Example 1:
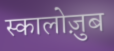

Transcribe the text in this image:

स्कालोज़ुब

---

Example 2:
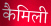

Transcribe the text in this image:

कैमिली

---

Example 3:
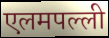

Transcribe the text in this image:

एलमपल्ली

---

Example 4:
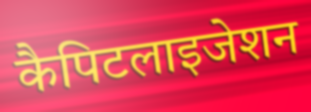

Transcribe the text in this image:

कैपिटलाइजेशन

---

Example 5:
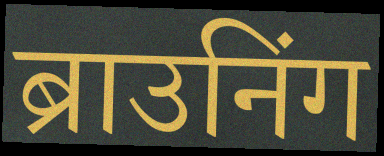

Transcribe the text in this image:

ब्राउनिंग